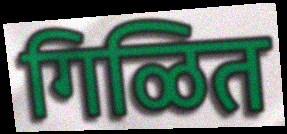
गिळित